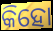
କିହୋ